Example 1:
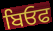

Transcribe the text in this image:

ਬਿਓਫ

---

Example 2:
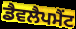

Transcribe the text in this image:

ਡੈਵਲੈਪਮੈਂਟ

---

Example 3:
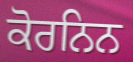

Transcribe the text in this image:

ਕੋਰਨਿਨ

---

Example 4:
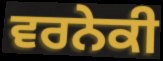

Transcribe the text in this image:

ਵਰਨੇਕੀ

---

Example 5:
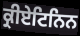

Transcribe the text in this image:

ਕ੍ਰੀਏਟਿਨਿਨ